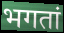
भगतां